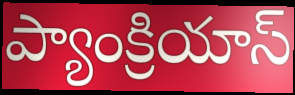
ప్యాంక్రియాస్